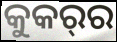
କୁକର୍‌ର